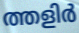
ത്തളിർ